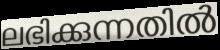
ലഭിക്കുന്നതിൽ